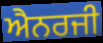
ਐਨਰਜੀ